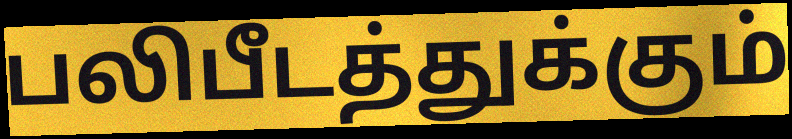
பலிபீடத்துக்கும்